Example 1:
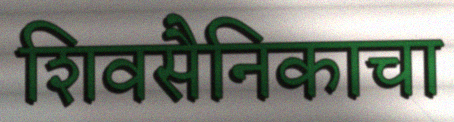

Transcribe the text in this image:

शिवसैनिकाचा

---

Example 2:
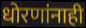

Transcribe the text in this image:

धोरणांनाही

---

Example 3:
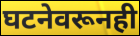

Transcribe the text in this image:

घटनेवरूनही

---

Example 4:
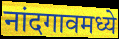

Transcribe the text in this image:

नांदगावमध्ये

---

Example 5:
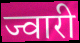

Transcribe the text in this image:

ज्वारी